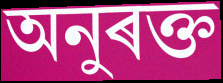
অনুৰক্ত